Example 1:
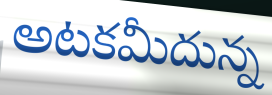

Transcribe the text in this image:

అటకమీదున్న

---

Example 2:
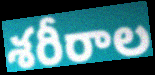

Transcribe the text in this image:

శరీరాల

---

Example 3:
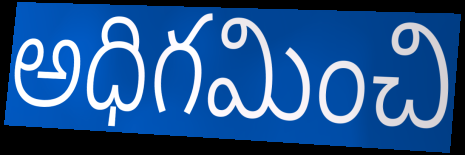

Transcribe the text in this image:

అధిగమించి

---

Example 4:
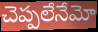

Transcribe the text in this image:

చెప్పలేనేమో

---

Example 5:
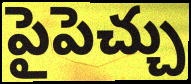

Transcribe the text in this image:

పైపెచ్చు